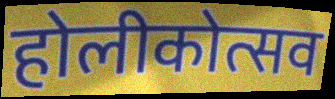
होलीकोत्सव